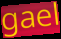
gael